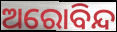
ଅରୋବିନ୍ଦ